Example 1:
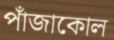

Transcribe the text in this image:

পাঁজাকোল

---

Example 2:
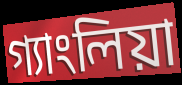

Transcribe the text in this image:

গ্যাংলিয়া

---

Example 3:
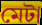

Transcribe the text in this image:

মেটা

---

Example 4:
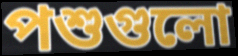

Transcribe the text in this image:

পশুগুলো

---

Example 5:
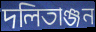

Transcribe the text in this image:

দলিতাঞ্জন